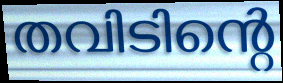
തവിടിന്റെ